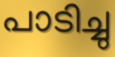
പാടിച്ചു